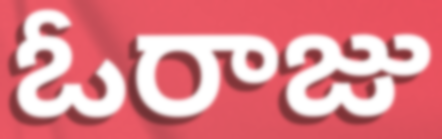
ఓరాజు